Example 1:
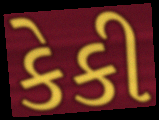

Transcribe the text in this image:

કેકી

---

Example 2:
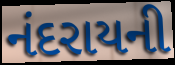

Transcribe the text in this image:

નંદરાયની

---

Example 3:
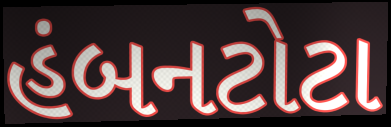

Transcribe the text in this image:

હંબનટોટા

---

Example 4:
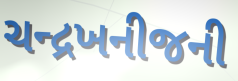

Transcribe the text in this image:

ચન્દ્રખનીજની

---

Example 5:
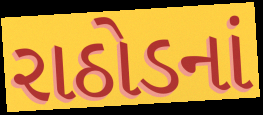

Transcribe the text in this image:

રાઠોડનાં